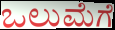
ಒಲುಮೆಗೆ